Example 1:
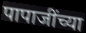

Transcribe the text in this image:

पापाजींच्या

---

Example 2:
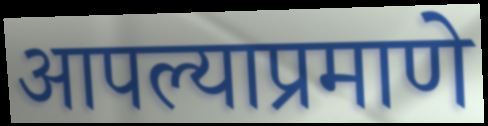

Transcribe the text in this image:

आपल्याप्रमाणे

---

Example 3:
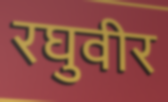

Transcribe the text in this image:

रघुवीर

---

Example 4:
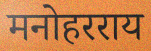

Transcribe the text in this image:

मनोहरराय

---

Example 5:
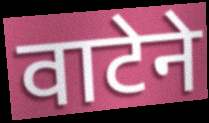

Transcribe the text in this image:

वाटेने